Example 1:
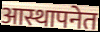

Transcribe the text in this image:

आस्थापनेत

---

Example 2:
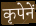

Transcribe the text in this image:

कृपेनें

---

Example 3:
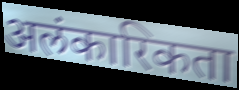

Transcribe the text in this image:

अलंकारिकता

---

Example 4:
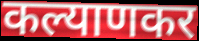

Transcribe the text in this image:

कल्याणकर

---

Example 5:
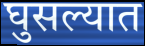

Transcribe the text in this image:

घुसल्यात